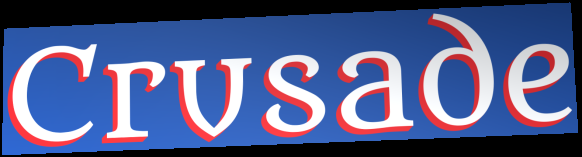
Crusade